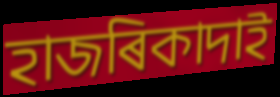
হাজৰিকাদাই